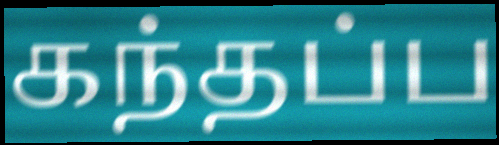
கந்தப்ப